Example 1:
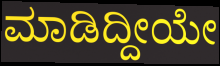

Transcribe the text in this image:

ಮಾಡಿದ್ದೀಯೇ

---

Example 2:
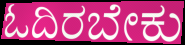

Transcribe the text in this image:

ಓದಿರಬೇಕು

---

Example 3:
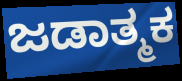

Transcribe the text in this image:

ಜಡಾತ್ಮಕ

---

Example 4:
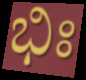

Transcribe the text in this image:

ಭಿಃ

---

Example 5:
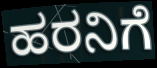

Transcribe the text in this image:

ಹರನಿಗೆ